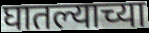
घातल्याच्या